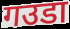
गउडा